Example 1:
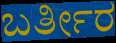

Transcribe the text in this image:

ಬರ್ತೀರ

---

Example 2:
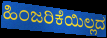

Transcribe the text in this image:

ಹಿಂಜರಿಕೆಯಿಲ್ಲದ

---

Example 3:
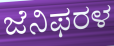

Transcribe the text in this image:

ಜೆನಿಫರಳ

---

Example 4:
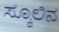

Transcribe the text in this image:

ಸ್ಕೂಲಿನ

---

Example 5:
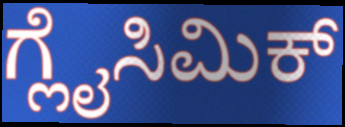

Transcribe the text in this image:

ಗ್ಲೈಸಿಮಿಕ್